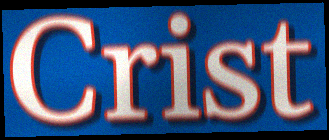
Crist